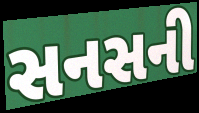
સનસની